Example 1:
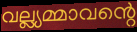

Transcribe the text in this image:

വല്ല്യമ്മാവന്റെ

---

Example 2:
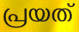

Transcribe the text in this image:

പ്രയത്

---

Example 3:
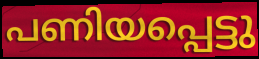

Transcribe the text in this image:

പണിയപ്പെട്ടു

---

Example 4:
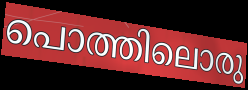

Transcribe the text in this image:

പൊത്തിലൊരു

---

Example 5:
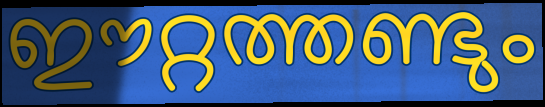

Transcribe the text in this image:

ഈറ്റത്തണ്ടും